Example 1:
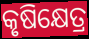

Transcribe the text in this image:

କୃଷିକ୍ଷେତ୍ର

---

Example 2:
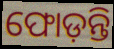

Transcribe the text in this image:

ଫୋଡ଼ନ୍ତି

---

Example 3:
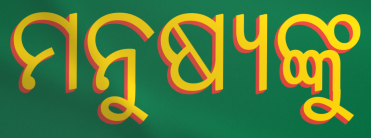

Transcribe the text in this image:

ମନୁଷ୍ୟଙ୍କୁ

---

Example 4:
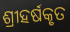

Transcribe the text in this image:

ଶ୍ରୀହର୍ଷକୃତ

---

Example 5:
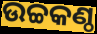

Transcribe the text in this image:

ଉଚ୍ଚକଣ୍ଠ